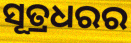
ସୂତ୍ରଧରର